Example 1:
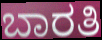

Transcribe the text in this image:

ಬಾರತಿ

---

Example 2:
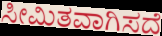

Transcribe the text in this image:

ಸೀಮಿತವಾಗಿಸದೆ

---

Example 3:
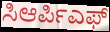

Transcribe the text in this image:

ಸಿಆರ್ಪಿಎಫ್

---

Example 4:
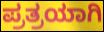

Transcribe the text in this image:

ಪ್ರತ್ರಯಾಗಿ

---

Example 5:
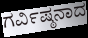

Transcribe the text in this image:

ಗರ್ವಿಷ್ಠನಾದ